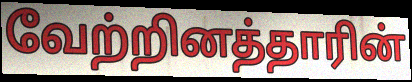
வேற்றினத்தாரின்